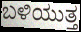
ಬಳಿಯುತ್ತ